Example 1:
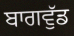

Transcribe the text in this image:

ਬਾਗਵੁੱਡ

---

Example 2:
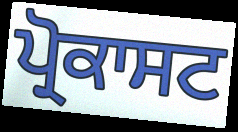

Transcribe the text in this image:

ਪ੍ਰੋਕਾਸਟ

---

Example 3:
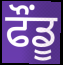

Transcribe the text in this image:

ਫੌਂਡੂ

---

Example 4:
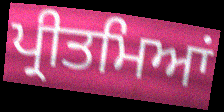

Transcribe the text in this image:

ਪ੍ਰੀਤਮਿਆਂ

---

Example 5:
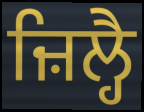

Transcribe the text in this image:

ਜ਼ਿਲ੍ਹੈ